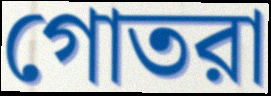
গোতরা